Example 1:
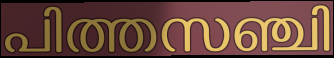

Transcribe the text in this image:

പിത്തസഞ്ചി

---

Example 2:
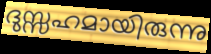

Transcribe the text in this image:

ദുസ്സഹമായിരുന്നു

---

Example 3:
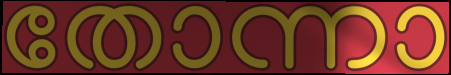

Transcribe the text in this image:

തോന്നാ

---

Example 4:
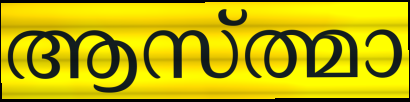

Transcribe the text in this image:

ആസ്ത്മാ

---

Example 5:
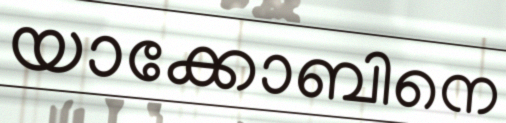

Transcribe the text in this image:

യാക്കോബിനെ